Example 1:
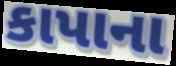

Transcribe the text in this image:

કાપાના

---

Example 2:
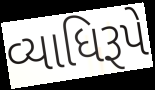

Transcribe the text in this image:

વ્યાધિરૂપે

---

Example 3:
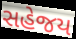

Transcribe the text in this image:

સહેજય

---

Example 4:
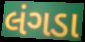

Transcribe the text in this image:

લંગડા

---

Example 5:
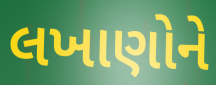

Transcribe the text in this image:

લખાણોને